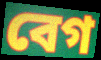
বেগ